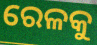
ରେଳକୁ